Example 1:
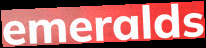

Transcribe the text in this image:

emeralds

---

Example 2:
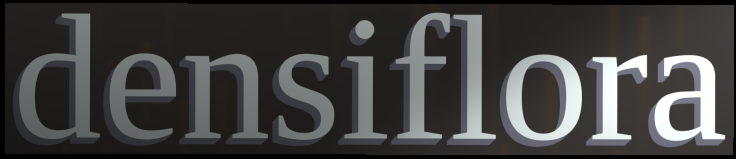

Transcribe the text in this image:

densiflora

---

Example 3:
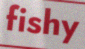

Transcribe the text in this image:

fishy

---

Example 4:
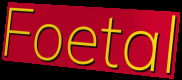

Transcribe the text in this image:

Foetal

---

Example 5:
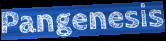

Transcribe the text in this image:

Pangenesis